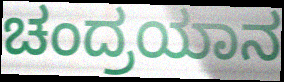
ಚಂದ್ರಯಾನ